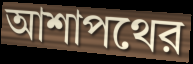
আশাপথের